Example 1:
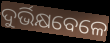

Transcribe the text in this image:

ଦୁର୍ଭିକ୍ଷବେଳେ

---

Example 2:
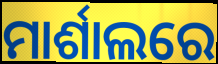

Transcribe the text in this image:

ମାର୍ଶାଲରେ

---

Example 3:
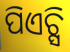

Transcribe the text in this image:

ପିଏଚ୍ସି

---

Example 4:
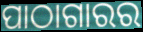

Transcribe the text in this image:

ପାଠାଗାରର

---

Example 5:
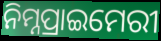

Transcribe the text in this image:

ନିମ୍ନପ୍ରାଇମେରୀ